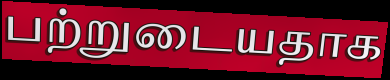
பற்றுடையதாக